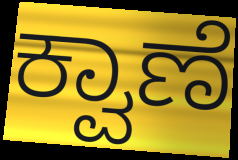
ಕ್ವಾಣೆ